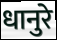
धानुरे